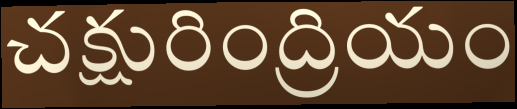
చక్షురింద్రియం